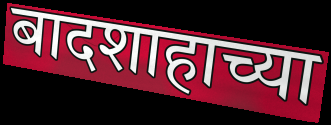
बादशाहाच्या